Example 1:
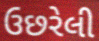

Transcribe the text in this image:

ઉછરેલી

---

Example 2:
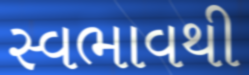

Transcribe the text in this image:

સ્વભાવથી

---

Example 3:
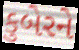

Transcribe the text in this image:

કુબેરને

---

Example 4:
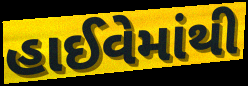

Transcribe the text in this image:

હાઈવેમાંથી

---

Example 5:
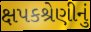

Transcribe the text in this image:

ક્ષપકશ્રેણીનું